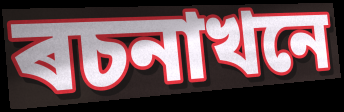
ৰচনাখনে